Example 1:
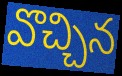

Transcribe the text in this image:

వొచ్చిన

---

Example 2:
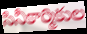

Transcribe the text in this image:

సినీకార్మికుల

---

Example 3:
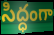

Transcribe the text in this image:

సిద్ధంగా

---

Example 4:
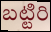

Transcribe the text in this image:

బట్టిరి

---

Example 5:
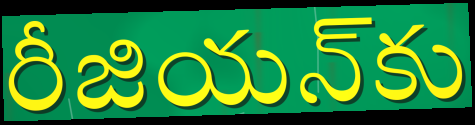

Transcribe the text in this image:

రీజియన్‌కు